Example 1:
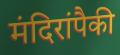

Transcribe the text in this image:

मंदिरांपैकी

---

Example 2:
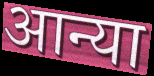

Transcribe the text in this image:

आन्या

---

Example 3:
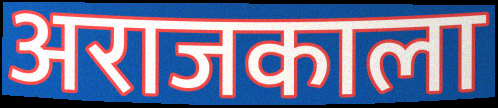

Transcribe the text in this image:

अराजकाला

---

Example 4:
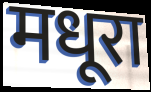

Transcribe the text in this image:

मधूरा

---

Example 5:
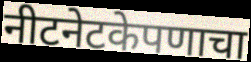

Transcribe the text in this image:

नीटनेटकेपणाचा